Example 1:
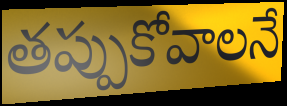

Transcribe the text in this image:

తప్పుకోవాలనే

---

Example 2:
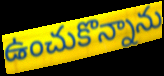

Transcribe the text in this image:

ఉంచుకొన్నాను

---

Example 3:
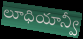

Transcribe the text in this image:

లూధియాన్వీ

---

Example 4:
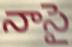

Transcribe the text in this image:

నాసై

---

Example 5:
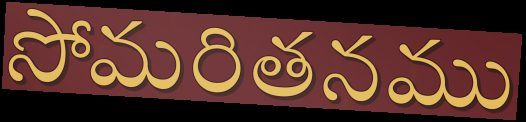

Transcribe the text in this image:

సోమరితనము